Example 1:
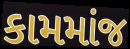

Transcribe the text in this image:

કામમાંજ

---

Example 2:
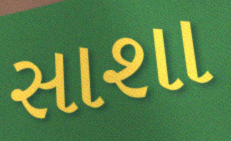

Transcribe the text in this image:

સાશા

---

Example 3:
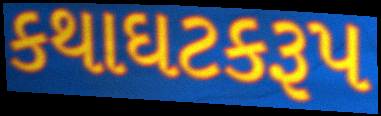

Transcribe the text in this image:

કથાઘટકરૂપ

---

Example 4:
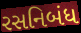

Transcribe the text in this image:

રસનિબંધ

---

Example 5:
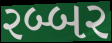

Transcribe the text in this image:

રબ્બર